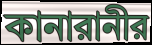
কানারানীর